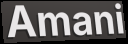
Amani